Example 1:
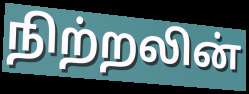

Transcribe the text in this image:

நிற்றலின்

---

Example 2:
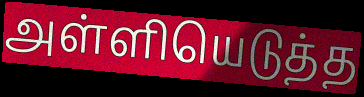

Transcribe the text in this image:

அள்ளியெடுத்த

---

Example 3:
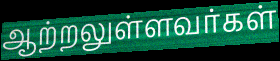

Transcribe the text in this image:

ஆற்றலுள்ளவர்கள்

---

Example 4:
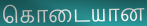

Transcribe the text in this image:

கொடையான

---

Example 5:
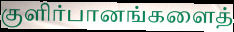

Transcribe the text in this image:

குளிர்பானங்களைத்